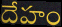
దేహం